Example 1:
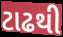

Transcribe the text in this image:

ટાઢથી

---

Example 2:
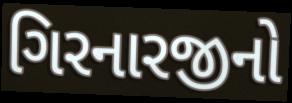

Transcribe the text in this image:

ગિરનારજીનો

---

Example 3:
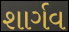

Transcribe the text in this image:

શાર્ગવ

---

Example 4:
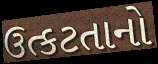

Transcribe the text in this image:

ઉત્કટતાનો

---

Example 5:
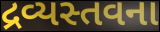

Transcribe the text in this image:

દ્રવ્યસ્તવના